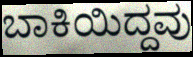
ಬಾಕಿಯಿದ್ದವು